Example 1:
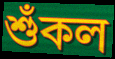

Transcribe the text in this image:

শুঁকল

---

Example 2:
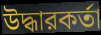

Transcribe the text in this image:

উদ্ধারকর্তা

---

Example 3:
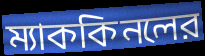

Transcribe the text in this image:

ম্যাককিনলের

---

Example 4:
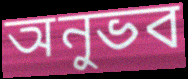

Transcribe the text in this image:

অনুভব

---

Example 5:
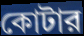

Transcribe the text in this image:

কোটার